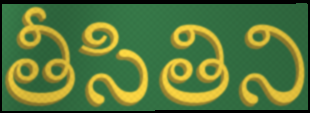
తీసితిని